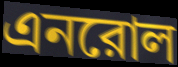
এনরোল